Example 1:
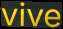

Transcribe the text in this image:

vive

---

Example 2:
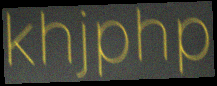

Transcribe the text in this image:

khjphp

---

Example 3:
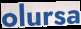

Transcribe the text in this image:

olursa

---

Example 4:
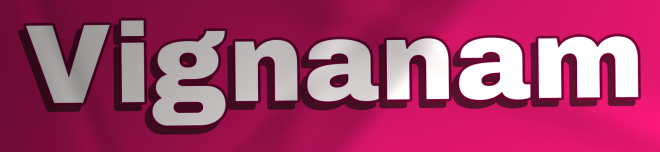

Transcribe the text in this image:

Vignanam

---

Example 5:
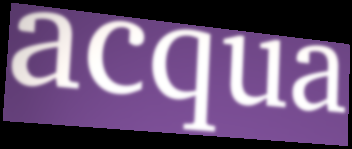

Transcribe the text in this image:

acqua